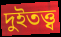
দুইতত্ত্ব